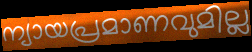
ന്യായപ്രമാണവുമില്ല